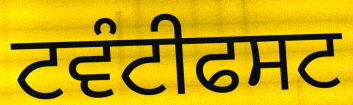
ਟਵੰਟੀਫਸਟ